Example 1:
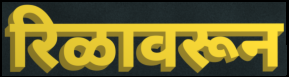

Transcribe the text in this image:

रिळावरून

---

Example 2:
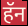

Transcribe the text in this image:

हॅन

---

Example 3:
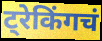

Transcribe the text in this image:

ट्रेकिंगचं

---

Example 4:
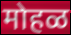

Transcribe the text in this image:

मोहळ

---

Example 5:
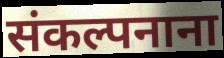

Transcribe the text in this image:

संकल्पनाना